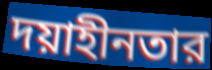
দয়াহীনতার